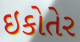
ઇકોતેર